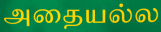
அதையல்ல